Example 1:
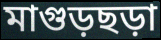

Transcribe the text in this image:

মাগুড়ছড়া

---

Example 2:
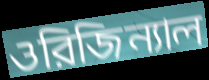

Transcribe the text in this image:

ওরিজিন্যাল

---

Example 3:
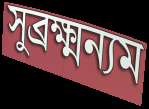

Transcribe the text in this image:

সুব্রক্ষ্মন্যম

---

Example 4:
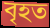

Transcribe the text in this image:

বৃহত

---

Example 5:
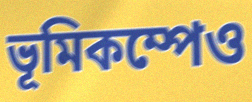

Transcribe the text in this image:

ভূমিকম্পেও